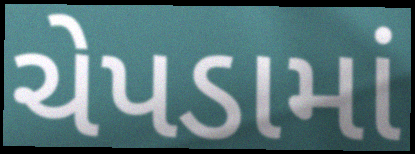
ચેપડામાં